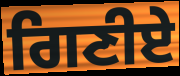
ਗਿਣੀਏ